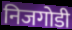
निजगोडी